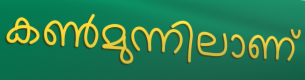
കൺമുന്നിലാണ്